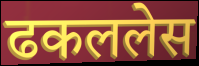
ढकललेस